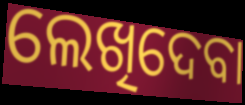
ଲେଖିଦେବା